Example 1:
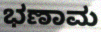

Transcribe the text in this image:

ಭಣಾಮ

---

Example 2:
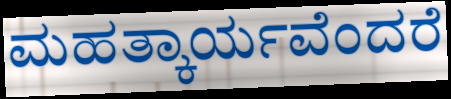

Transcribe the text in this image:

ಮಹತ್ಕಾರ್ಯವೆಂದರೆ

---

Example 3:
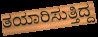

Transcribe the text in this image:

ತಯಾರಿಸುತ್ತಿದ್ದ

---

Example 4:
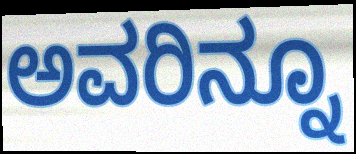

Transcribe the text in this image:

ಅವರಿನ್ನೂ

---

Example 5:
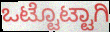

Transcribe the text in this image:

ಒಟ್ಟೊಟ್ಟಾಗಿ